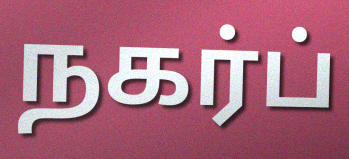
நகர்ப்